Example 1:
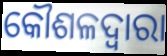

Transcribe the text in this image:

କୌଶଳଦ୍ୱାରା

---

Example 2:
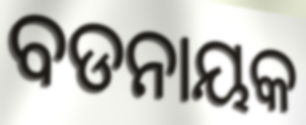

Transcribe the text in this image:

ବଡନାୟକ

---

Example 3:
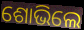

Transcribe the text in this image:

ଶୋଭିଲେ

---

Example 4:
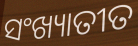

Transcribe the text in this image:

ସଂଖ୍ୟାତୀତ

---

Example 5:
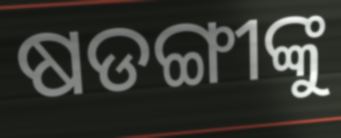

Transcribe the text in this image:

ଷଡଙ୍ଗୀଙ୍କୁ